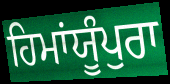
ਹਿਮਾਂਯੂੰਪੁਰਾ